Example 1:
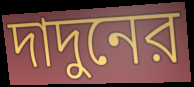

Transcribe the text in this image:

দাদুনের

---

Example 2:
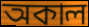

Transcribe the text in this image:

অকাল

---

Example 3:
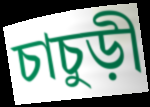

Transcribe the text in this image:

চাচুড়ী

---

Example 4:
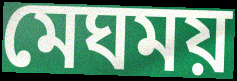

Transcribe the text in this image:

মেঘময়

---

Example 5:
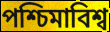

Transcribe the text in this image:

পশ্চিমাবিশ্ব